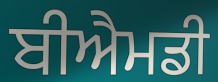
ਬੀਐਮਡੀ